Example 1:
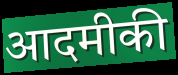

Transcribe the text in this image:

आदमीकी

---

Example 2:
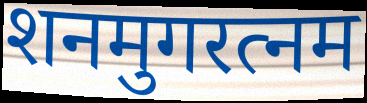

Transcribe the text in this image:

शनमुगरत्नम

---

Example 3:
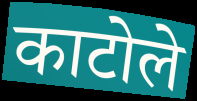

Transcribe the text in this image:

काटोले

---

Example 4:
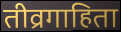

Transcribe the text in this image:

तीव्रगाहिता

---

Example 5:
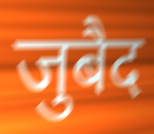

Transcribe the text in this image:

जुबैद